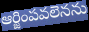
ఆర్జింపవలెనను